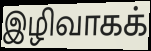
இழிவாகக்